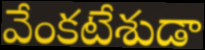
వేంకటేశుడా